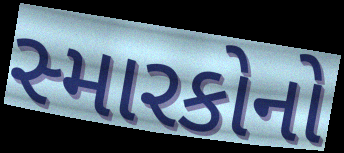
સ્મારકોનો